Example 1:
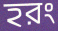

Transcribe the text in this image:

হরং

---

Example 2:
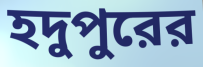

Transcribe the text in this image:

হদুপুরের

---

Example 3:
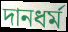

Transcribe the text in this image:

দানধর্ম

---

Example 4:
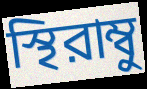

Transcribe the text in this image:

স্থিরাম্বু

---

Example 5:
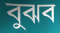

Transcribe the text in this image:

বুঝব